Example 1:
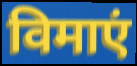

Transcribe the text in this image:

विमाएं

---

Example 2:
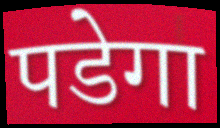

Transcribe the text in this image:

पडेगा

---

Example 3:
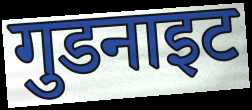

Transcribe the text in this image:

गुडनाइट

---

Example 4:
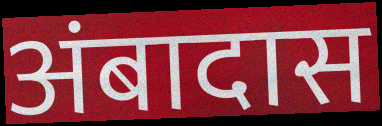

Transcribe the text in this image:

अंबादास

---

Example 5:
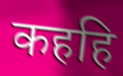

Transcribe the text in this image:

कहहि